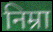
निम्रा